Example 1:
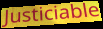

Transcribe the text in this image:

Justiciable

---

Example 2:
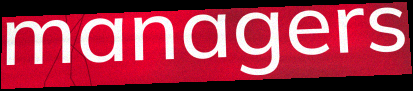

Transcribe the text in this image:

managers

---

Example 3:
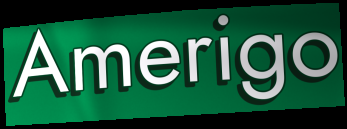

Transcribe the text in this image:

Amerigo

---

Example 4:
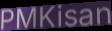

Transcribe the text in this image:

PMKisan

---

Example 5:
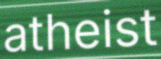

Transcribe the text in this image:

atheist